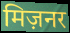
मिज़नर